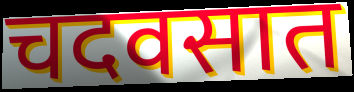
चदवसात